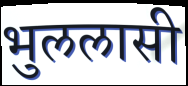
भुललासी